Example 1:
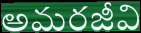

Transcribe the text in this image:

అమరజీవి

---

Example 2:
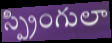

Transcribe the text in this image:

స్ప్రింగులా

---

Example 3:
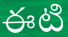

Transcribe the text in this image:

ఈటి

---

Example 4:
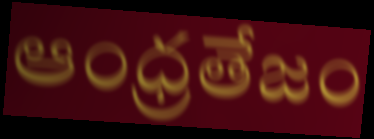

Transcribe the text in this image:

ఆంధ్రతేజం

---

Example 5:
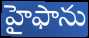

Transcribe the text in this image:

హైఫాను